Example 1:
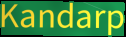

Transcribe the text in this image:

Kandarp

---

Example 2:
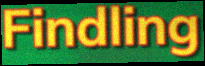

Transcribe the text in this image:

Findling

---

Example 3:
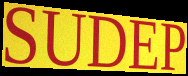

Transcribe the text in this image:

SUDEP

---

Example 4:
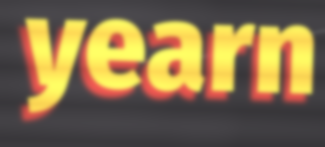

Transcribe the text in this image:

yearn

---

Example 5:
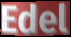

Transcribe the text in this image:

Edel